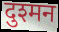
दुश्मन